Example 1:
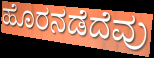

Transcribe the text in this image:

ಹೊರನಡೆದೆವು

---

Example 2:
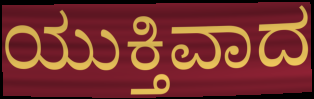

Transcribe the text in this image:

ಯುಕ್ತಿವಾದ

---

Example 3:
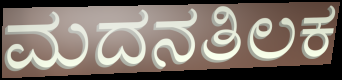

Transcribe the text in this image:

ಮದನತಿಲಕ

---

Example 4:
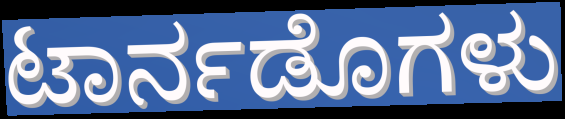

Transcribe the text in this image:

ಟಾರ್ನಡೊಗಳು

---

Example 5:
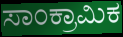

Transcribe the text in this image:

ಸಾಂಕ್ರಾಮಿಕ